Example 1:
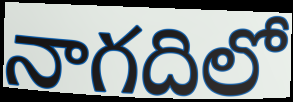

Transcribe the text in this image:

నాగదిలో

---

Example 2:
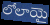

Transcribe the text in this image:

లోలాయై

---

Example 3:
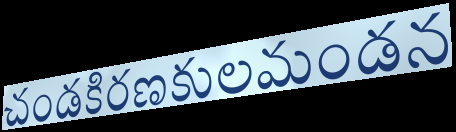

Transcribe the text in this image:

చండకిరణకులమండన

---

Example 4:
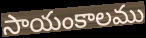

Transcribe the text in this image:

సాయంకాలము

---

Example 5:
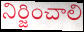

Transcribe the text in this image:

నిర్జించాలి